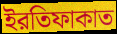
ইরতিফাকাত